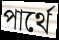
পার্থে